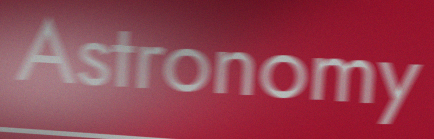
Astronomy